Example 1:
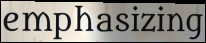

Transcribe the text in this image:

emphasizing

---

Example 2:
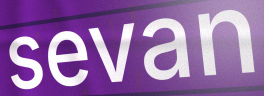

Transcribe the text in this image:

sevan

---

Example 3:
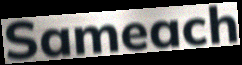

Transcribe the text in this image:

Sameach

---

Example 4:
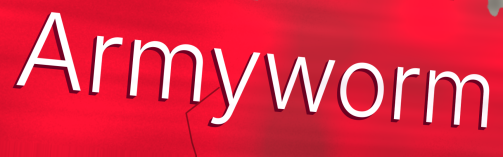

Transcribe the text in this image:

Armyworm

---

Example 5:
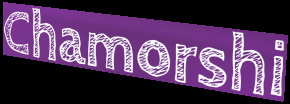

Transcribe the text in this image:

Chamorshi